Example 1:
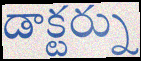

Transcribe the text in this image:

డాక్టర్ను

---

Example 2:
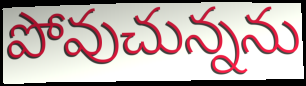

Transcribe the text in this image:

పోవుచున్నను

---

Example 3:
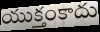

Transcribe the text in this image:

యుక్తంకాదు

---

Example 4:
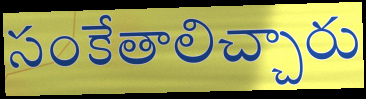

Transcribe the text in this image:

సంకేతాలిచ్చారు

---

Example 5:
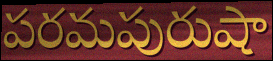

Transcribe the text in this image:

పరమపురుషా